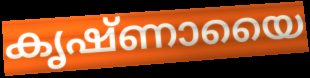
കൃഷ്ണായൈ